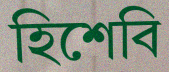
হিশেবি